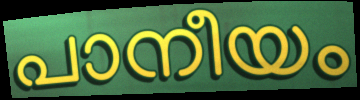
പാനീയം